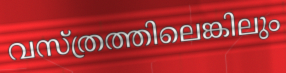
വസ്ത്രത്തിലെങ്കിലും